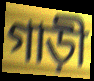
গাড়ী